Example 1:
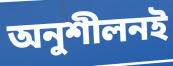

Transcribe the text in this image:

অনুশীলনই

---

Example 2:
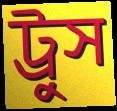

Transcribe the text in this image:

ট্রুস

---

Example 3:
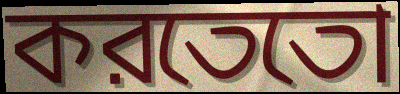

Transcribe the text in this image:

করতেতো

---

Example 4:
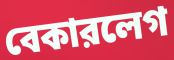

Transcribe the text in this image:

বেকারলেগ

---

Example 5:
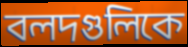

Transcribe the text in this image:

বলদগুলিকে